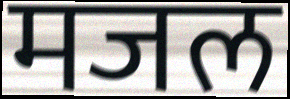
मजल